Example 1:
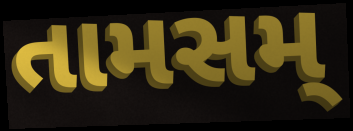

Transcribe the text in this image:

તામસમ્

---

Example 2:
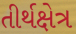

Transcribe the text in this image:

તીર્થક્ષેત્ર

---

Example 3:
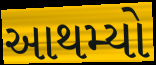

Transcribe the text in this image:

આથમ્યો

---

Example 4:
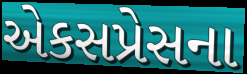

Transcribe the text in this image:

એકસપ્રેસના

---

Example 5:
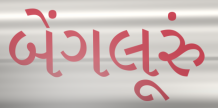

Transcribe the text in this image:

બેંગલૂરું